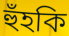
হুঁহকি